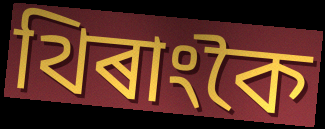
থিৰাংকৈ